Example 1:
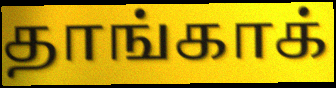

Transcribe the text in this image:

தாங்காக்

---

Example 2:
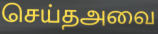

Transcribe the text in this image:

செய்தஅவை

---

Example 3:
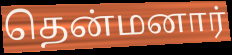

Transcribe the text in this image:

தென்மனார்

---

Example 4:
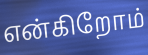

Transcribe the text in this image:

என்கிறோம்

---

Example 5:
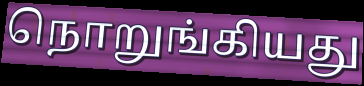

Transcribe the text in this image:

நொறுங்கியது